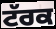
ਟੱਰਕ